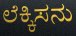
ಲೆಕ್ಕಿಸನು